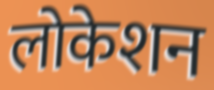
लोकेशन